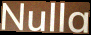
Nulla